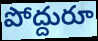
పోద్దురూ